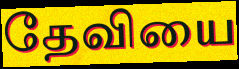
தேவியை